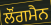
ਲੌਂਗਮੈਨ